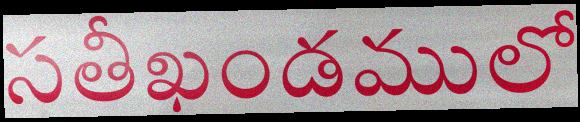
సతీఖండములో